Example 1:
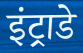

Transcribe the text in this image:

इंट्राडे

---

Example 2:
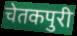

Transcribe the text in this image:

चेतकपुरी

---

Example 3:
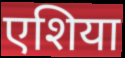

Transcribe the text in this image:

एशिया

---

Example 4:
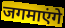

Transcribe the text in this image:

जगमाएंगे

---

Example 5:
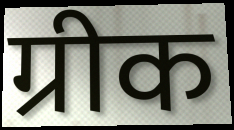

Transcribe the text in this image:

ग्रीक